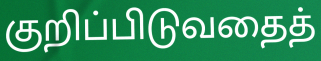
குறிப்பிடுவதைத்